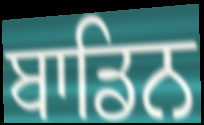
ਬਾਡਿਨ